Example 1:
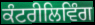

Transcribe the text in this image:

ਕੰਟਰੀਲਿਵਿੰਗ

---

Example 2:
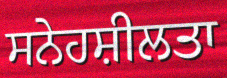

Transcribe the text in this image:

ਸਨੇਹਸ਼ੀਲਤਾ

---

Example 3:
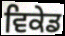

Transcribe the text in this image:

ਵਿਕੇਡ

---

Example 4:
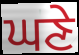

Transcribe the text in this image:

ਘਣੇ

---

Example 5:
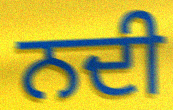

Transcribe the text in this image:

ਨਦੀ